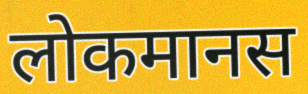
लोकमानस